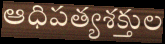
ఆధిపత్యశక్తుల